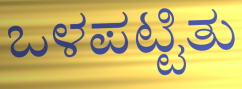
ಒಳಪಟ್ಟಿತು